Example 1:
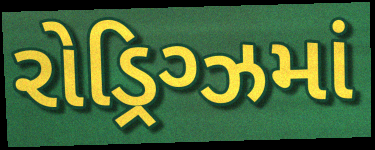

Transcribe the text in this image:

રોડ્રિગ્ઝમાં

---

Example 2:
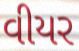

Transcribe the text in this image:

વીયર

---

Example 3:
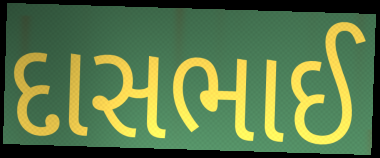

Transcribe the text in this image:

દાસભાઈ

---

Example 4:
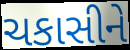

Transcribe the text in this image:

ચકાસીને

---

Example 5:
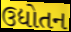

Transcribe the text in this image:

ઉદ્યોતન